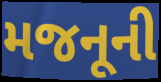
મજનૂની